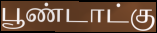
பூண்டாட்கு